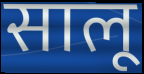
सालू